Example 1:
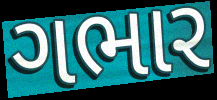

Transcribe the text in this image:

ગભાર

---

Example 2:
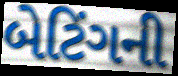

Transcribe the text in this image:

બેટિંગની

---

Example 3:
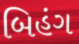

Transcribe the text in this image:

બિહંગ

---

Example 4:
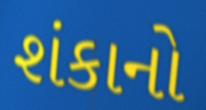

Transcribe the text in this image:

શંકાનો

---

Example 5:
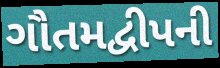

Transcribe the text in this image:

ગૌતમદ્વીપની